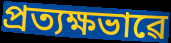
প্ৰত্যক্ষভাৱে